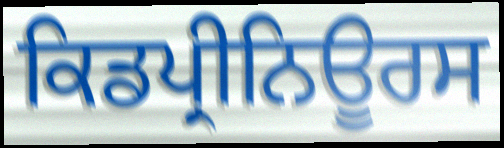
ਕਿਡਪ੍ਰੀਨਿਊਰਸ